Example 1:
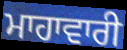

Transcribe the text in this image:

ਮਾਹਾਵਾਰੀ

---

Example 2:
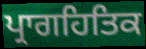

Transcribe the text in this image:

ਪ੍ਰਾਗਹਿਤਿਕ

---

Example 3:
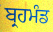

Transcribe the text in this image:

ਬ੍ਰਹਮੰਡ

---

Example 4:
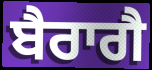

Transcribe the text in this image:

ਬੈਰਾਗੈ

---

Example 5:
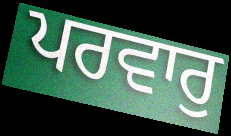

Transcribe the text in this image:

ਪਰਵਾਰੁ